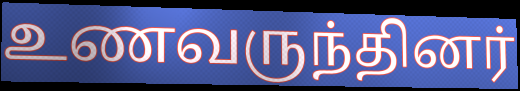
உணவருந்தினர்